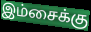
இம்சைக்கு